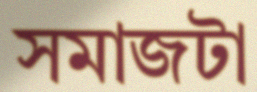
সমাজটা